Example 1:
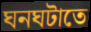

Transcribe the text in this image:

ঘনঘটাতে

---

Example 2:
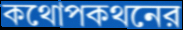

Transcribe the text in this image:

কথোপকথনের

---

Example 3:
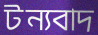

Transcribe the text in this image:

টন্যবাদ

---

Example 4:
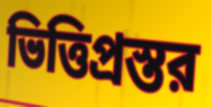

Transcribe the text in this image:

ভিত্তিপ্রস্তর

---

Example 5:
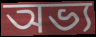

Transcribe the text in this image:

অভ্য